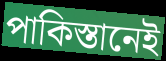
পাকিস্তানেই